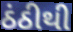
ઠંઠીથી